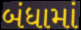
બંધામાં